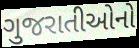
ગુજરાતીઓનો